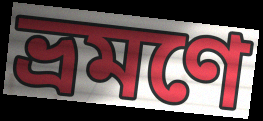
ভ্রমণে